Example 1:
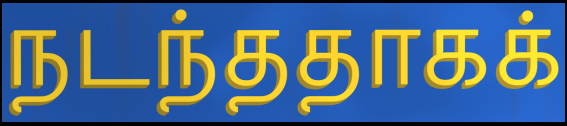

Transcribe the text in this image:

நடந்ததாகக்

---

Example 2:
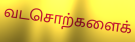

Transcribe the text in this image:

வடசொற்களைக்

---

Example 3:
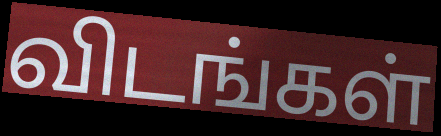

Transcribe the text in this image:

விடங்கள்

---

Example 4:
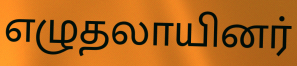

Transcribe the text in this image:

எழுதலாயினர்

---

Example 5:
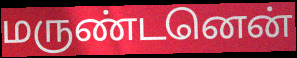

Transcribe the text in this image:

மருண்டனென்